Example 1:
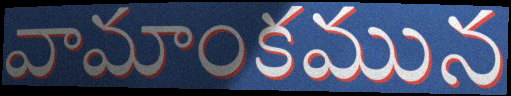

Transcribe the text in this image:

వామాంకమున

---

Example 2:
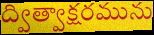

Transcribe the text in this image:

ద్విత్వాక్షరమును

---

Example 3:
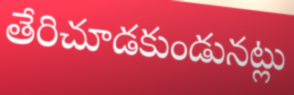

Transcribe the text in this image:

తేరిచూడకుండునట్లు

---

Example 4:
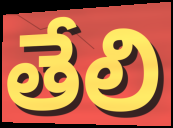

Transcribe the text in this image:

తేలి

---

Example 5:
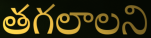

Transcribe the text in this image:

తగలాలని